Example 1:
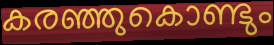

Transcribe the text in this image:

കരഞ്ഞുകൊണ്ടും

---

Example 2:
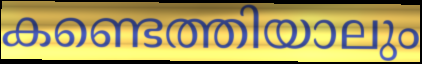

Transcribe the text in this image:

കണ്ടെത്തിയാലും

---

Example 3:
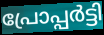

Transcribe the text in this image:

പ്രോപ്പർട്ടി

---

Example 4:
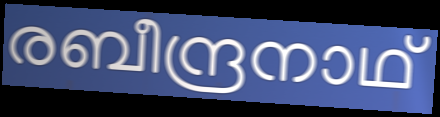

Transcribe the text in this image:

രബീന്ദ്രനാഥ്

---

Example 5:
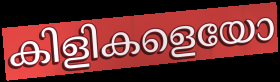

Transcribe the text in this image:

കിളികളെയോ